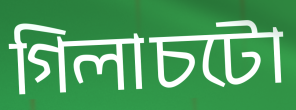
গিলাচটো